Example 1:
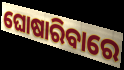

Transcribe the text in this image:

ଘୋଷାରିବାରେ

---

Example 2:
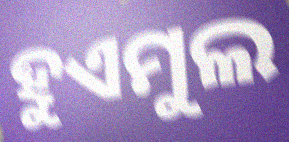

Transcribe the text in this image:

ହୁଏମୁଲ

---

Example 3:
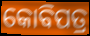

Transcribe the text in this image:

କୋବିପତ୍ର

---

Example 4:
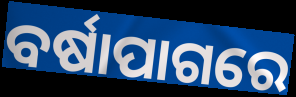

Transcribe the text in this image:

ବର୍ଷାପାଗରେ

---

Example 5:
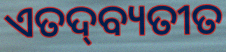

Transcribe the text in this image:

ଏତଦ୍‌ବ୍ୟତୀତ